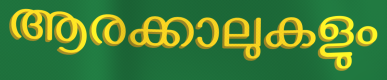
ആരക്കാലുകളും